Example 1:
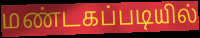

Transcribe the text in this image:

மண்டகப்படியில்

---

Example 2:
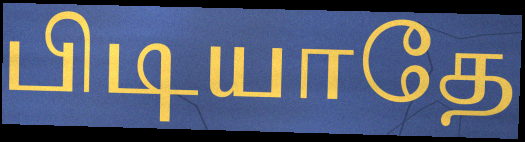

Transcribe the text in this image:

பிடியாதே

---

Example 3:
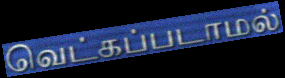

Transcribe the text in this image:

வெட்கப்படாமல்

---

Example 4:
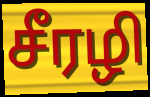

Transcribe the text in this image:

சீரழி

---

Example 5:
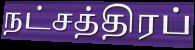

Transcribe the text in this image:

நட்சத்திரப்